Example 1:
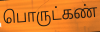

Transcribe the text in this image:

பொருட்கண்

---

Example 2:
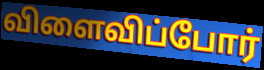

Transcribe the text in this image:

விளைவிப்போர்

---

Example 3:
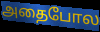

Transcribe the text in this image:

அதைபோல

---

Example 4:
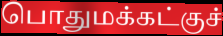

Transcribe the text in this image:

பொதுமக்கட்குச்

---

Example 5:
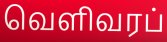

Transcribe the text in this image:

வெளிவரப்